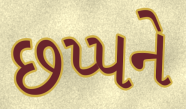
છપ્પને